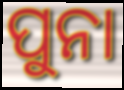
ପୁନା